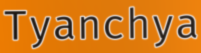
Tyanchya